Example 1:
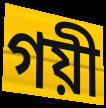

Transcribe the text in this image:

গয়ী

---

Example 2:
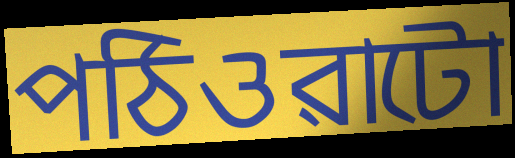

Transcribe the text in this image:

পঠিওৱাটো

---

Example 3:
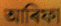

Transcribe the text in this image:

আৰিফা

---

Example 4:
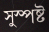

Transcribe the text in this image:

সুস্পষ্ট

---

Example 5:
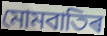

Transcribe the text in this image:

মোমবাতিৰ